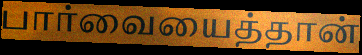
பார்வையைத்தான்